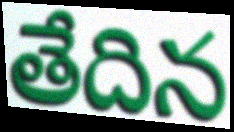
తేదిన